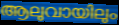
ആലുവായിലും